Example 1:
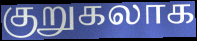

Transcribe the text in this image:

குறுகலாக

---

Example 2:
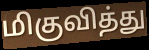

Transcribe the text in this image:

மிகுவித்து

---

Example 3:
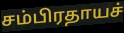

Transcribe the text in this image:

சம்பிரதாயச்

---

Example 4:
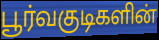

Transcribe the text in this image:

பூர்வகுடிகளின்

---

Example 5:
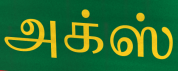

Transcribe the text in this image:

அக்ஸ்